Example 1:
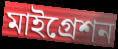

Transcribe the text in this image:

মাইগ্রেশন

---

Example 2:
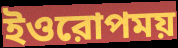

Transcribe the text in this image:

ইওরোপময়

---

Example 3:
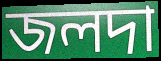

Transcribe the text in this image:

জলদা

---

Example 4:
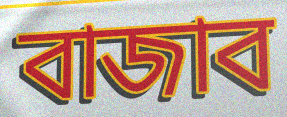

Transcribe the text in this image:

বাজাব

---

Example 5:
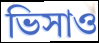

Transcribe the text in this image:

ভিসাও